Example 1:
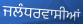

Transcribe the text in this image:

ਜਲੰਧਰਵਾਸੀਆਂ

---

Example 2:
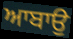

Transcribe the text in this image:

ਆਬਾਉ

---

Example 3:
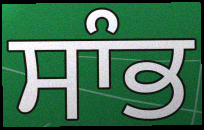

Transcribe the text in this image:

ਸਾੰਭ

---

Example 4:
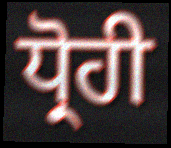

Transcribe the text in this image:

ਧ੍ਰੋਹੀ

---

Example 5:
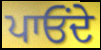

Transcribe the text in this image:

ਪਾਓਂਦੇ